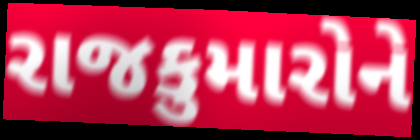
રાજકુમારોને